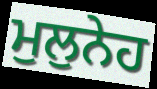
ਮੁਲੁਨੇਹ